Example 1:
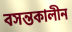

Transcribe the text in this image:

বসন্তকালীন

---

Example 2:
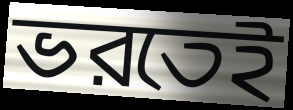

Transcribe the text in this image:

ভরতেই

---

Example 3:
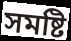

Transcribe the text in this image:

সমষ্টি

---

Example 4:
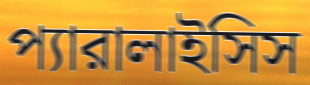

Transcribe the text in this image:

প্যারালাইসিস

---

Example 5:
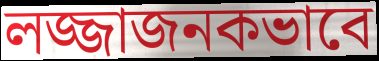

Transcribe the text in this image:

লজ্জাজনকভাবে